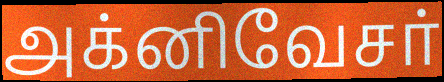
அக்னிவேசர்